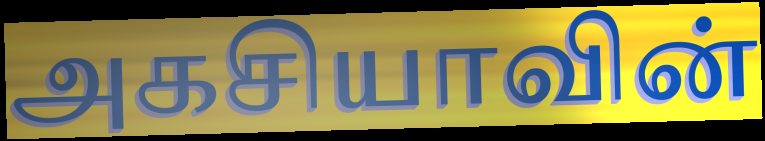
அகசியாவின்